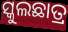
ସ୍କୁଲଛାତ୍ର